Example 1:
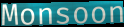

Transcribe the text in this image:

Monsoon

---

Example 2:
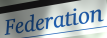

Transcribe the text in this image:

Federation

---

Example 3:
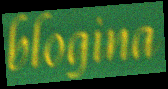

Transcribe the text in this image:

blogina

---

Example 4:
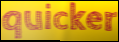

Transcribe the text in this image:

quicker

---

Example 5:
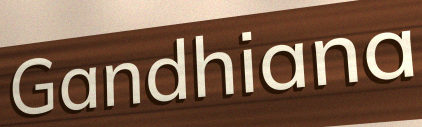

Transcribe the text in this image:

Gandhiana